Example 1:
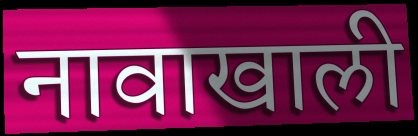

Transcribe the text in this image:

नावाखाली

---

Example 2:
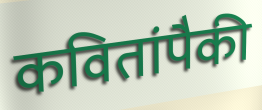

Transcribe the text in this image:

कवितांपैकी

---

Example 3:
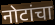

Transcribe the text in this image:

नोटांचा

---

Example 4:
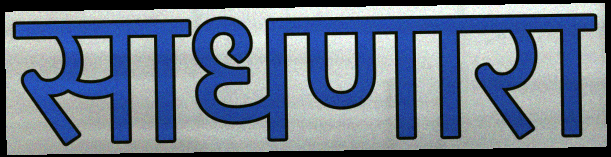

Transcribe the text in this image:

साधणारा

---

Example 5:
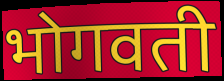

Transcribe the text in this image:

भोगवती